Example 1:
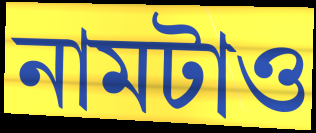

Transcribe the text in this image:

নামটাও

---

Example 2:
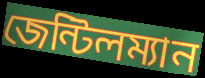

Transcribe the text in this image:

জেন্টিলম্যান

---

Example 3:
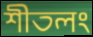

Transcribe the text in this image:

শীতলং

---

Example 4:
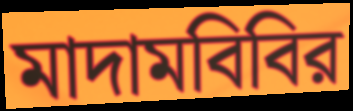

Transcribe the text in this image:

মাদামবিবির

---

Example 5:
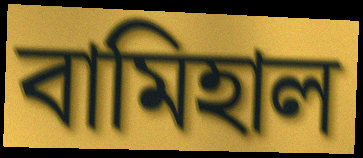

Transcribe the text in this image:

বামিহাল